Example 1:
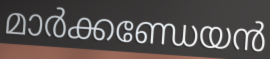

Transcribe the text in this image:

മാർക്കണ്ഡേയൻ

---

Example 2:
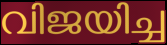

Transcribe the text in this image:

വിജയിച്ച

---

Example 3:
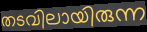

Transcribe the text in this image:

തടവിലായിരുന്ന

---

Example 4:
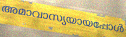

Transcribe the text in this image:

അമാവാസ്യയായപ്പോൾ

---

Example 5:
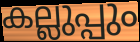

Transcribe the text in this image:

കല്ലുപ്പും